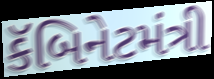
કૅબિનેટમંત્રી